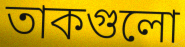
তাকগুলো